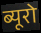
ब्यूरो